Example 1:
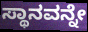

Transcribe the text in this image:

ಸ್ಥಾನವನ್ನೇ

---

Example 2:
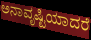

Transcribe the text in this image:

ಅನಾವೃಷ್ಟಿಯಾದರೆ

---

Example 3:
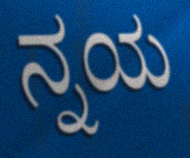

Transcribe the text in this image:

ನ್ನಯ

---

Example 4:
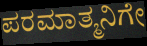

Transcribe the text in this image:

ಪರಮಾತ್ಮನಿಗೇ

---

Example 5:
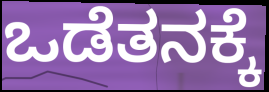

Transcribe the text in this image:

ಒಡೆತನಕ್ಕೆ